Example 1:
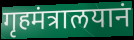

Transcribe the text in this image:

गृहमंत्रालयानं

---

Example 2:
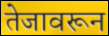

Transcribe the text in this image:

तेजावरून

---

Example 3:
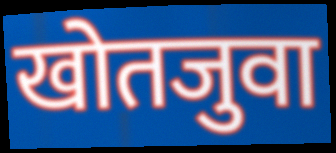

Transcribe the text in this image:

खोतजुवा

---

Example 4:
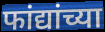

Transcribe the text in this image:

फांद्यांच्या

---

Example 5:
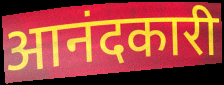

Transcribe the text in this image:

आनंदकारी